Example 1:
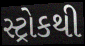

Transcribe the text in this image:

સ્ટ્રોકથી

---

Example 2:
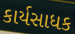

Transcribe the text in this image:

કાર્યસાધક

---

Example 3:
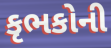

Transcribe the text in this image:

કૃભકોની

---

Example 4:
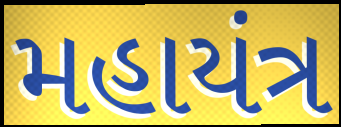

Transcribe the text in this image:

મહાયંત્ર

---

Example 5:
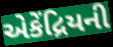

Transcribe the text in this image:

એકેંદ્રિયની